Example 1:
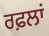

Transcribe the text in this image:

ਰਫ਼ਲਾਂ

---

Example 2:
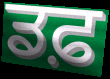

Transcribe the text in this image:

ਡਫ਼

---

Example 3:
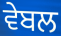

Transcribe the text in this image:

ਵੇਬਲ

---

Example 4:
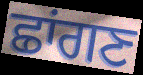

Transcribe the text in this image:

ਛਾਂਗਣ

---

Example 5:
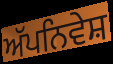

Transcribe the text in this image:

ਅੱਪਨਿਵੇਸ਼